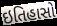
ઇતિહાસો